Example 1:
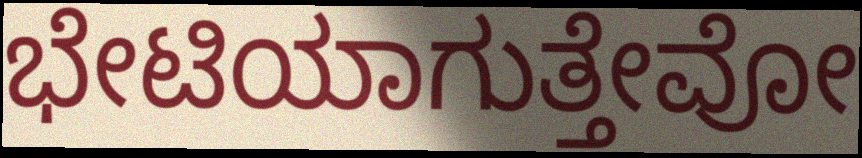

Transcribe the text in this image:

ಭೇಟಿಯಾಗುತ್ತೇವೋ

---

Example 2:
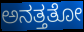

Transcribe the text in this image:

ಅನತ್ತತೋ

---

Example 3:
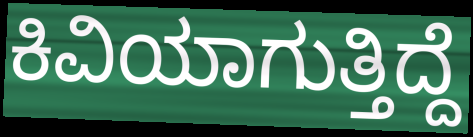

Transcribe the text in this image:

ಕಿವಿಯಾಗುತ್ತಿದ್ದೆ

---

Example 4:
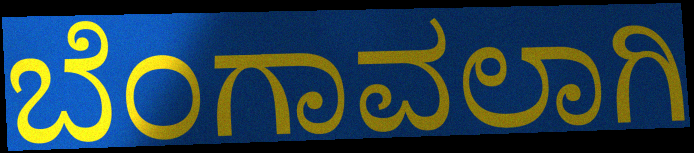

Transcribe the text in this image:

ಬೆಂಗಾವಲಾಗಿ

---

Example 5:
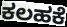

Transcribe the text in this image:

ಕಲಹಕೆ